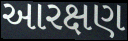
આરક્ષણ